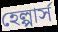
হেল্পার্স